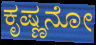
ಕೃಷ್ಣನೋ